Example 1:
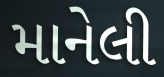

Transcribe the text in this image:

માનેલી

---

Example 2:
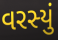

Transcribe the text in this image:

વરસ્યું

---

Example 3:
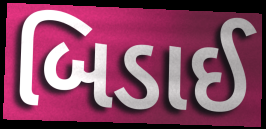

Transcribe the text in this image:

બિડાઈ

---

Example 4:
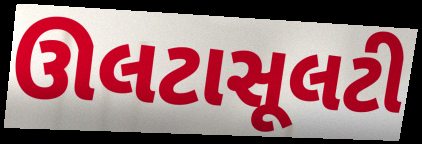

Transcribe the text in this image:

ઊલટાસૂલટી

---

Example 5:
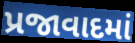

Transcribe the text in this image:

પ્રજાવાદમાં